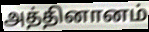
அத்தினானம்